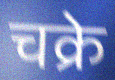
चक्रे